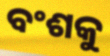
ବଂଶକୁ